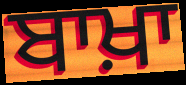
ਬਾਖ਼ਾ